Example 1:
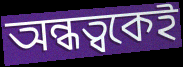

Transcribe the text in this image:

অন্ধত্বকেই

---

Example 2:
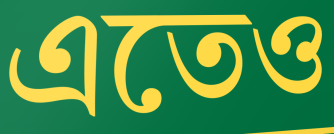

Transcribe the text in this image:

এতেও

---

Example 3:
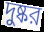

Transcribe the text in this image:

দুষ্কর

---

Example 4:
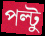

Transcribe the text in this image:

পল্টু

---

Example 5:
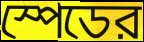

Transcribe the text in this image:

স্পেডের